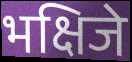
भक्षिजे